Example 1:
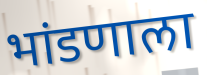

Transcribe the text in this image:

भांडणाला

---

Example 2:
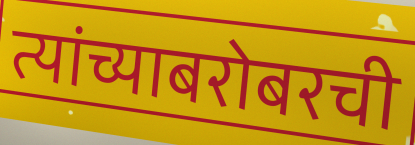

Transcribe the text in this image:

त्यांच्याबरोबरची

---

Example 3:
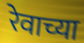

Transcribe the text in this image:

रेवाच्या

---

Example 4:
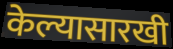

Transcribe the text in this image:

केल्यासारखी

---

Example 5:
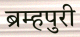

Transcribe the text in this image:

ब्रम्हपुरी